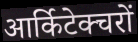
आर्किटेक्चरों